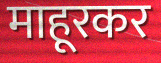
माहूरकर